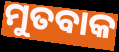
ମୁତବାକ